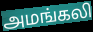
அமங்கலி